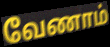
வேணாம்